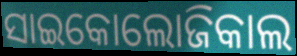
ସାଇକୋଲୋଜିକାଲ